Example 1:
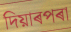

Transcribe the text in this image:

দিয়াৰপৰা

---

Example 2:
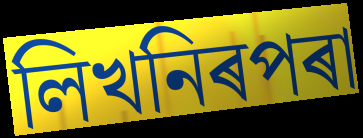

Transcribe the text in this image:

লিখনিৰপৰা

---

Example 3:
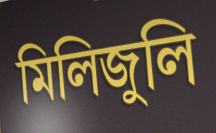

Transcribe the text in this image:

মিলিজুলি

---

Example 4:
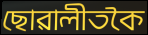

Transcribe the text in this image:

ছোৱালীতকৈ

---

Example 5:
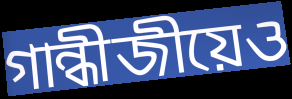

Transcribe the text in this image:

গান্ধীজীয়েও